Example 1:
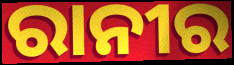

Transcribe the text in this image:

ରାନୀର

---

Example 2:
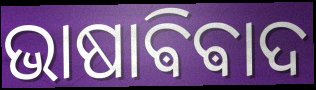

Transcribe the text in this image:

ଭାଷାଵିଵାଦ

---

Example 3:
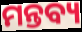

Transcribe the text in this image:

ମନ୍ତବ୍ୟ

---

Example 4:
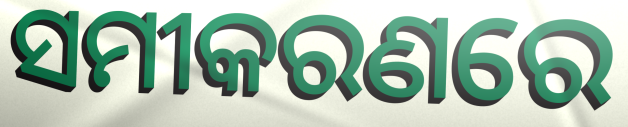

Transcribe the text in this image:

ସମୀକରଣରେ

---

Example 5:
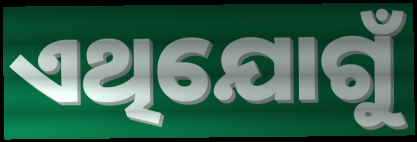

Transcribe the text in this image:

ଏଥିଯୋଗୁଁ